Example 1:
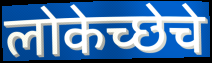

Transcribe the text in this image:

लोकेच्छेचे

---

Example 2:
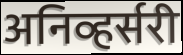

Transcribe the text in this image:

अनिव्हर्सरी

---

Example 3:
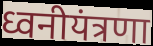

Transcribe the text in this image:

ध्वनीयंत्रणा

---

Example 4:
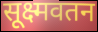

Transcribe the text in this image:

सूक्ष्मवतन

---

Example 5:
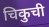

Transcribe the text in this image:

चिकुची